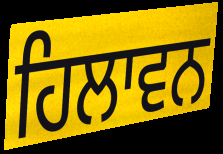
ਹਿਲਾਵਨ